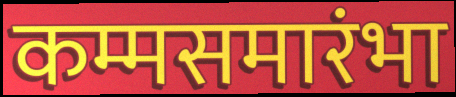
कम्मसमारंभा